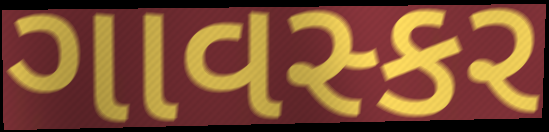
ગાવસ્કર